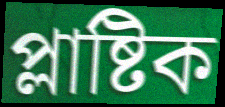
প্লাষ্টিক